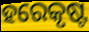
ହରେକୃଷ୍ଟ